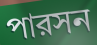
পারসন